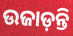
ଉଜାଡ଼ନ୍ତି